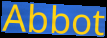
Abbot